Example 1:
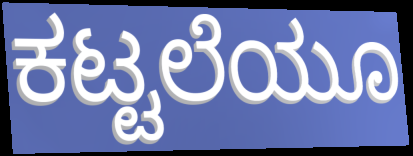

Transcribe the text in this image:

ಕಟ್ಟಲೆಯೂ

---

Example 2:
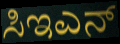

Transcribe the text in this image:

ಸಿಇಎನ್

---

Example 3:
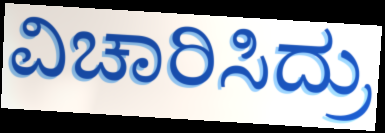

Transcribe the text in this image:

ವಿಚಾರಿಸಿದ್ರು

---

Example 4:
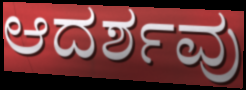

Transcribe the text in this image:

ಆದರ್ಶವು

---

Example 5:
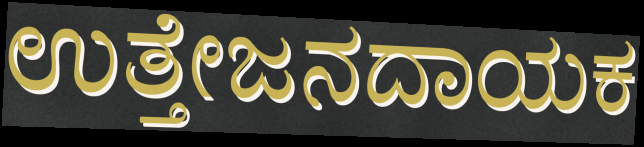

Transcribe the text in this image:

ಉತ್ತೇಜನದಾಯಕ